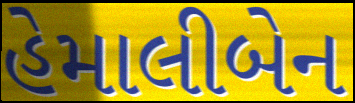
હેમાલીબેન